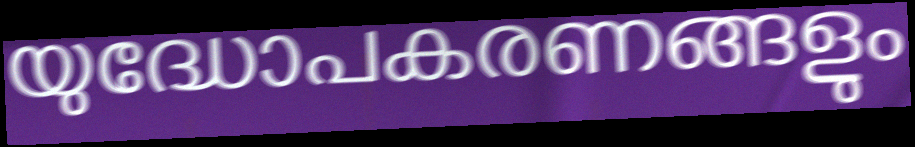
യുദ്ധോപകരണങ്ങളും